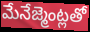
మేనేజ్మెంట్లతో